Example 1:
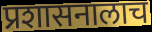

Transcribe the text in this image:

प्रशासनालाच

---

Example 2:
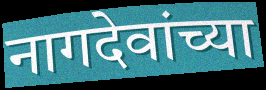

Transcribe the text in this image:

नागदेवांच्या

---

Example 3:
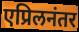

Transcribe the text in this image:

एप्रिलनंतर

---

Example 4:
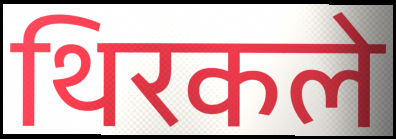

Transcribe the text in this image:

थिरकले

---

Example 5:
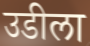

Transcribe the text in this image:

उडीला